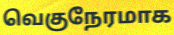
வெகுநேரமாக